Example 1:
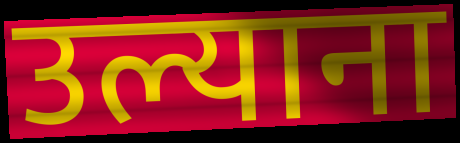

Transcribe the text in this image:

उल्याना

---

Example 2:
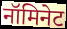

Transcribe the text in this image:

नॉमिनेट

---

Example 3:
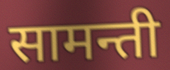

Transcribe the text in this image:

सामन्ती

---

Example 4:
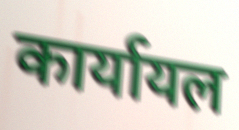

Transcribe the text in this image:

कार्यायल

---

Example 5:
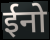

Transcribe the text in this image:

ईनो